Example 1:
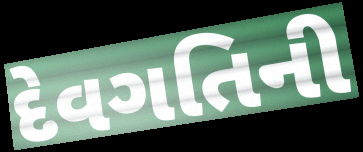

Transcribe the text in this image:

દેવગતિની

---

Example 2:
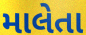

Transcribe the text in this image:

માલેતા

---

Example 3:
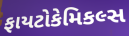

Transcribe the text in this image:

ફાયટોકેમિકલ્સ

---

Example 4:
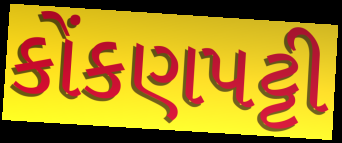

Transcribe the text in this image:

કોંકણપટ્ટી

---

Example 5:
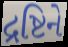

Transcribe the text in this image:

દ્રષ્ટિને